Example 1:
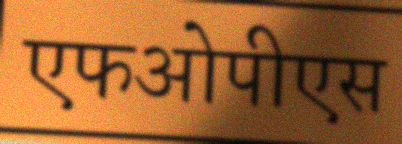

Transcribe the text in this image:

एफओपीएस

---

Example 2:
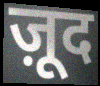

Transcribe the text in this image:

ज़ूद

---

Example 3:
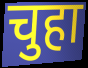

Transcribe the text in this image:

चुहा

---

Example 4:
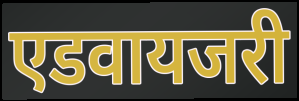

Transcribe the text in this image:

एडवायजरी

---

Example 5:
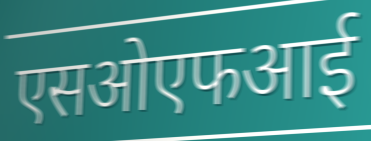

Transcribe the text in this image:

एसओएफआई